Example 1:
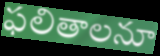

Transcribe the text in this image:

ఫలితాలనూ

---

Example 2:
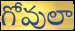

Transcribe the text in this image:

గోవులా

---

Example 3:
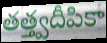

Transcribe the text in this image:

తత్త్వదీపికా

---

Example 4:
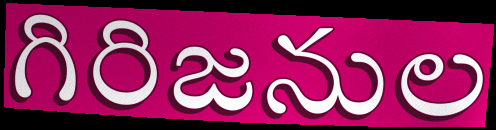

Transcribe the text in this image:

గిరిజనుల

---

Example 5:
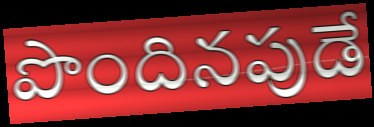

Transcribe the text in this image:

పొందినపుడే